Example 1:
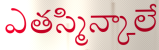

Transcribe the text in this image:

ఎతస్మిన్కాలే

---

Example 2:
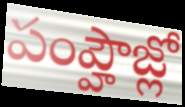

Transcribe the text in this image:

పంప్హౌజ్లో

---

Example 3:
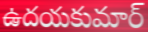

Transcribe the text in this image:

ఉదయకుమార్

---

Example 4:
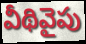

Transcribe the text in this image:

వీథివైపు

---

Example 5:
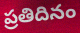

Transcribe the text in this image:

ప్రతిదినం